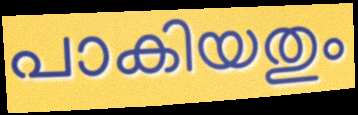
പാകിയതും